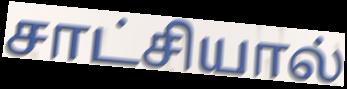
சாட்சியால்